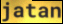
jatan